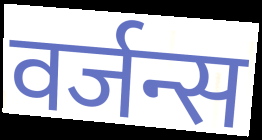
वर्जन्स